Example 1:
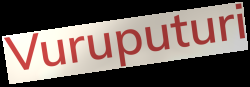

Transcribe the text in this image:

Vuruputuri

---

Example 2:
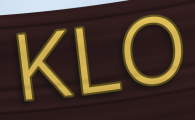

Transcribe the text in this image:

KLO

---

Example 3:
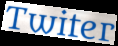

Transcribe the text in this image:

Twiter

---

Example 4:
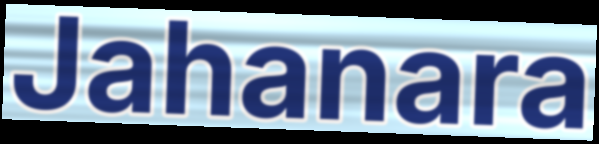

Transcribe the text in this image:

Jahanara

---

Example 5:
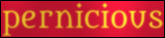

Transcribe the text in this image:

pernicious